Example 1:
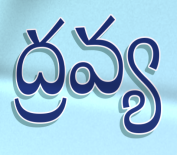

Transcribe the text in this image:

ద్రవ్య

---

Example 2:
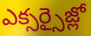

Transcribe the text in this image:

ఎక్సర్సైజ్లో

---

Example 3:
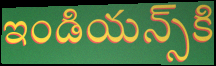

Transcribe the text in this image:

ఇండియన్స్‌కి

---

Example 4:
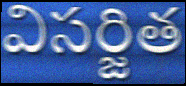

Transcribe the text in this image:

విసర్జిత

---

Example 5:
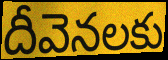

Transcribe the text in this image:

దీవెనలకు